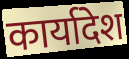
कार्यादेश